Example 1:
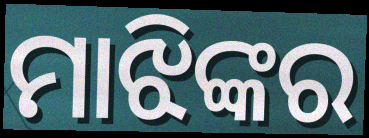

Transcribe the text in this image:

ମାଝିଙ୍କର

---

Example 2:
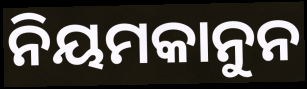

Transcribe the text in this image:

ନିୟମକାନୁନ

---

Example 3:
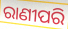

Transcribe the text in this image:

ରାଣୀପରି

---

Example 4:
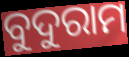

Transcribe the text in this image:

ବୁଦୁରାମ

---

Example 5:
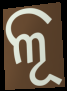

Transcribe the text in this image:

ଳୂ